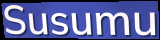
Susumu